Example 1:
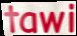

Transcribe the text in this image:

tawi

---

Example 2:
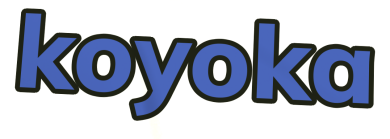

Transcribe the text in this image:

koyoka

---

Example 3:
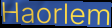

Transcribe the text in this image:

Haorlem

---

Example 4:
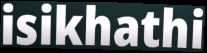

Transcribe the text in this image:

isikhathi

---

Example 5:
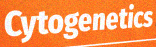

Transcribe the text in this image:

Cytogenetics